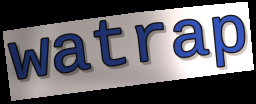
watrap